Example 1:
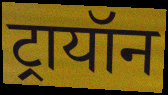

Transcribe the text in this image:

ट्रायॉन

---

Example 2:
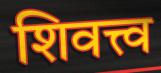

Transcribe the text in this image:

शिवत्त्व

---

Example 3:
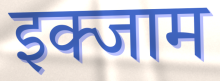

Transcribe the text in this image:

इक्जाम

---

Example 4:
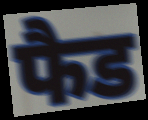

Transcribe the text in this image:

फैड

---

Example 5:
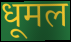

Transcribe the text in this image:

धूमल